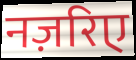
नज़रिए